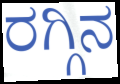
ರಗ್ಗಿನ